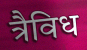
त्रैविध